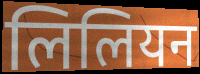
लिलियन